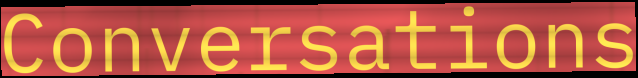
Conversations